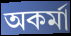
অকর্মা